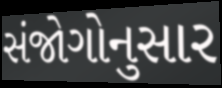
સંજોગોનુસાર